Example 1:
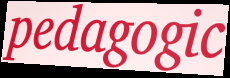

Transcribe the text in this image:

pedagogic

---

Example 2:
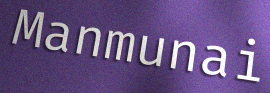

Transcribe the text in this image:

Manmunai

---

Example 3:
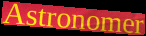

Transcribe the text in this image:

Astronomer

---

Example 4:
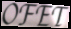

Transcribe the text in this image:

OFET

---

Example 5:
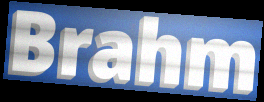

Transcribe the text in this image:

Brahm